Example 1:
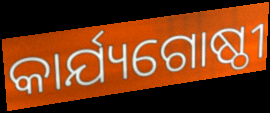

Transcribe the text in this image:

କାର୍ଯ୍ୟଗୋଷ୍ଠୀ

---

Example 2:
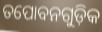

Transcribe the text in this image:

ତପୋବନଗୁଡ଼ିକ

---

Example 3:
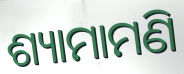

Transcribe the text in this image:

ଶ୍ୟାମାମଣି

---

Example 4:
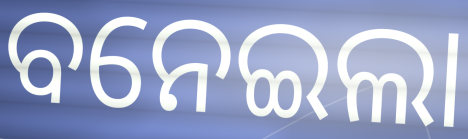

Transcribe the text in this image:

ବନେଇଲା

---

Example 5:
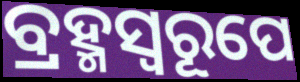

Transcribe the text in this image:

ବ୍ରହ୍ମସ୍ୱରୂପେ